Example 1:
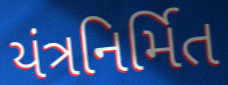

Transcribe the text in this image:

યંત્રનિર્મિત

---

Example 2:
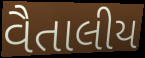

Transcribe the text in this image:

વૈતાલીય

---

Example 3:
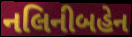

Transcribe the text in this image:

નલિનીબહેન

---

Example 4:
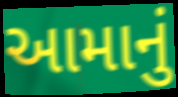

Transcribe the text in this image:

આમાનું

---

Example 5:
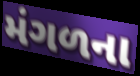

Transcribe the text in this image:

મંગળના